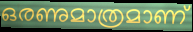
ഒരണുമാത്രമാണ്